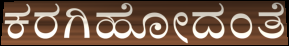
ಕರಗಿಹೋದಂತೆ